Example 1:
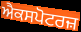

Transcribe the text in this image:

ਐਕਸਪੋਟਰਜ਼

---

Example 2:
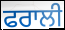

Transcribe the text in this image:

ਫਰਾਲੀ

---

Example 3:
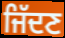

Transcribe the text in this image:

ਜਿੱਦਣ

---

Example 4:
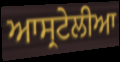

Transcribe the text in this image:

ਆਸ੍ਰਟੇਲੀਆ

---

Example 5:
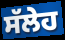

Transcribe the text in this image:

ਸੱਲੇਹ